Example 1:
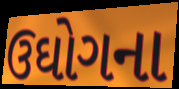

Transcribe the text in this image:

ઉઘોગના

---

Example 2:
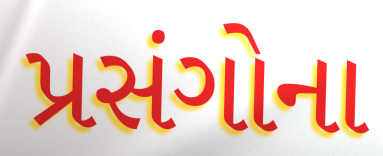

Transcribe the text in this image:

પ્રસંગોના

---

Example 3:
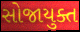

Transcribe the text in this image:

સોજાયુક્ત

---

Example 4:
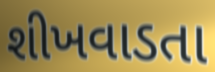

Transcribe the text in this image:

શીખવાડતા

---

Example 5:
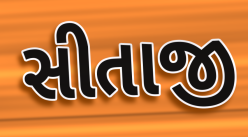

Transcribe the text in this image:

સીતાજી